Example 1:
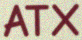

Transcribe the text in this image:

ATX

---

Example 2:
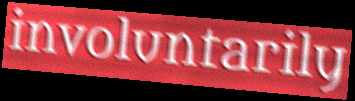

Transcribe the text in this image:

involuntarily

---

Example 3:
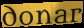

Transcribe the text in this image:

donar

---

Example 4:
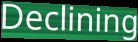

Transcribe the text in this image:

Declining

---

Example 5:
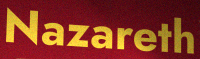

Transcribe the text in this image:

Nazareth